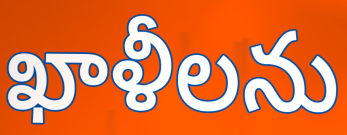
ఖాళీలను